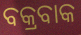
ବକ୍ରବାକ